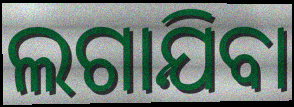
ଲଗାଯିବା